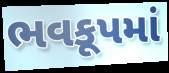
ભવકૂપમાં